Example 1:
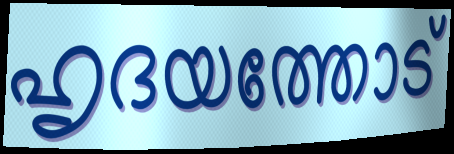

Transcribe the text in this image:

ഹൃദയത്തോട്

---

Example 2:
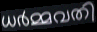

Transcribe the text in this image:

ധർമ്മവതി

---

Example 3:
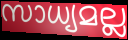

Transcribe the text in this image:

സാധ്യമല്ല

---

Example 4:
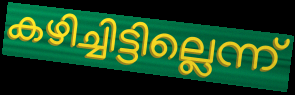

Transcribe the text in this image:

കഴിച്ചിട്ടില്ലെന്ന്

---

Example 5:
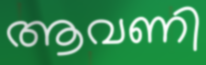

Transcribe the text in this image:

ആവണി